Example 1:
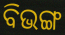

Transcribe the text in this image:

ବିଭଙ୍ଗ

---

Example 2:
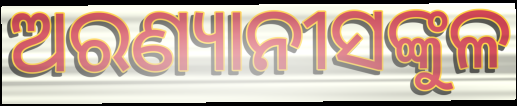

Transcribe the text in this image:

ଅରଣ୍ୟାନୀସଙ୍କୁଳ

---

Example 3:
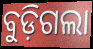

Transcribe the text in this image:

ବୁଡ଼ିଗଲା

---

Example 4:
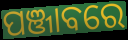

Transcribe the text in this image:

ପଞ୍ଜାବରେ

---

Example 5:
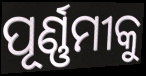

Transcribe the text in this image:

ପୂର୍ଣ୍ଣମୀକୁ